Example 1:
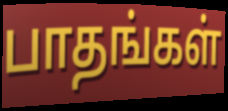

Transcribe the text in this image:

பாதங்கள்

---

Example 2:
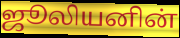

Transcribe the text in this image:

ஜூலியனின்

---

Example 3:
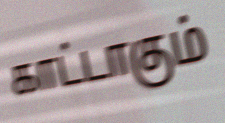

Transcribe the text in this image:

காட்டாகும்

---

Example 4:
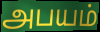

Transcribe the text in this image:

அபயம்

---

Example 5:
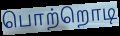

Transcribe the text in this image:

பொற்றொடி